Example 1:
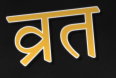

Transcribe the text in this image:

व्रत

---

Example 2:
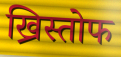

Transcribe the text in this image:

ख्रिस्तोफ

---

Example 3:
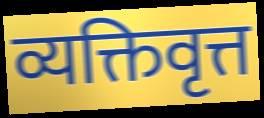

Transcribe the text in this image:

व्यक्तिवृत्त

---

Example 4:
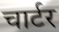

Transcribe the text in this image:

चार्टर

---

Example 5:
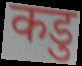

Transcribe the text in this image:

कडु